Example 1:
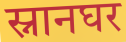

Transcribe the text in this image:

स्नानघर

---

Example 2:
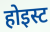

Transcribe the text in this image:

होइस्ट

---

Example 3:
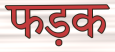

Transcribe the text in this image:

फड़क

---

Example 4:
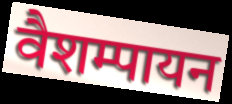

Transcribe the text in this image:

वैशम्पायन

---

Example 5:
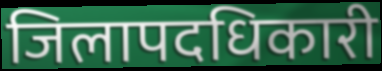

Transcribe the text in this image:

जिलापदधिकारी